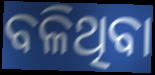
ବଳିଥିବା